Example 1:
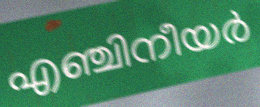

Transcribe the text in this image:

എഞ്ചിനീയർ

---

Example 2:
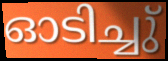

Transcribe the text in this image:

ഓടിച്ചു്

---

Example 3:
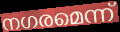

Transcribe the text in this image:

നഗരമെന്ന്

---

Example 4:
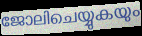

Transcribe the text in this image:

ജോലിചെയ്യുകയും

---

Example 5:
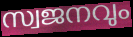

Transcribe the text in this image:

സ്വജനവും